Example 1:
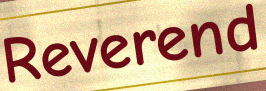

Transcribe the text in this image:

Reverend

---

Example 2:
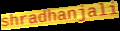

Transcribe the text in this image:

shradhanjali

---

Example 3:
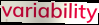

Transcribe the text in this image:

variability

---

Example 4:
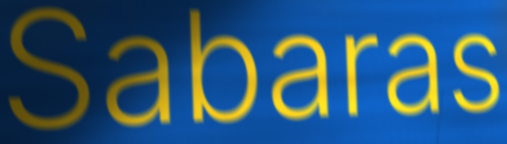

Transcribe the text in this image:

Sabaras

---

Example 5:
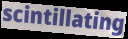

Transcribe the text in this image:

scintillating